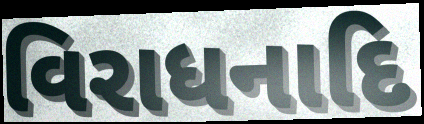
વિરાધનાદિ